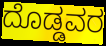
ದೊಡ್ಡವರ